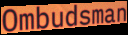
Ombudsman